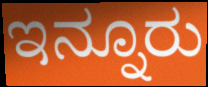
ಇನ್ನೂರು